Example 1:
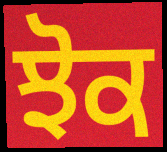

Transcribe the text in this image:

ਝੋਕ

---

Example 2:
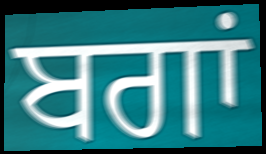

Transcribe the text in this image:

ਬਗਾਂ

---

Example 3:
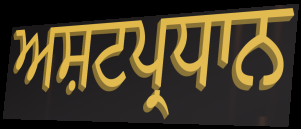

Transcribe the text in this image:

ਅਸ਼ਟਪ੍ਰਧਾਨ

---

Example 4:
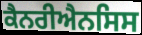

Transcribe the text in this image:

ਕੈਨਰੀਐਨਸਿਸ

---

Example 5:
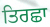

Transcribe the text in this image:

ਤਿਰਛਾ